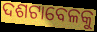
ଦଶଟାବେଳକୁ